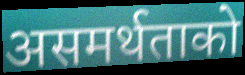
असमर्थताको